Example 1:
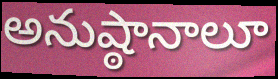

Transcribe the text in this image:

అనుష్ఠానాలూ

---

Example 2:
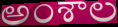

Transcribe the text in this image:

అంశాల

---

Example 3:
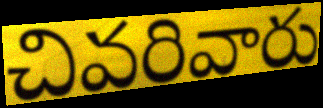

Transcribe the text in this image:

చివరివారు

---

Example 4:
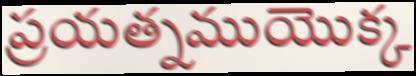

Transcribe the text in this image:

ప్రయత్నముయొక్క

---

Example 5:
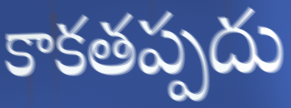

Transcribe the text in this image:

కాకతప్పదు